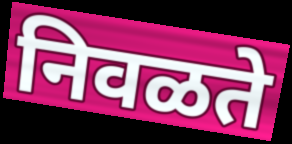
निवळते